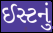
ઈસ્ટનું